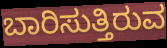
ಬಾರಿಸುತ್ತಿರುವ